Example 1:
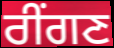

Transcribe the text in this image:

ਰੀਂਗਣ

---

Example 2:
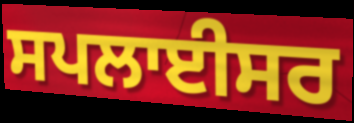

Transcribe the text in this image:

ਸਪਲਾਈਸਰ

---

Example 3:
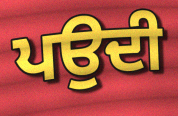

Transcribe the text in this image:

ਪਉਦੀ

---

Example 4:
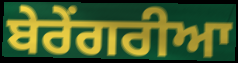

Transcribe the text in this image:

ਬੇਰੇਂਗਰੀਆ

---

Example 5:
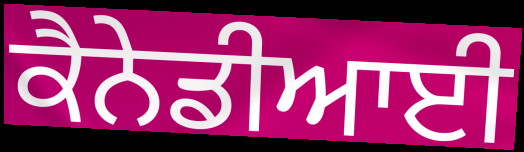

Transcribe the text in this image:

ਕੈਨੇਡੀਆਈ